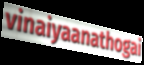
vinaiyaanathogai